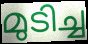
മുടിച്ച